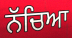
ਨੱਚਿਆ